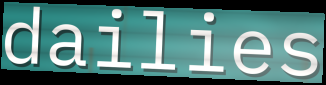
dailies